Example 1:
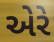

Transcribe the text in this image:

એરે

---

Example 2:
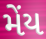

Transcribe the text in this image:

મેંય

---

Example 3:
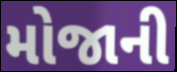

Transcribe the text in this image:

મોજાની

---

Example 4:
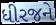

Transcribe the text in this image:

ધીરજને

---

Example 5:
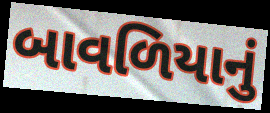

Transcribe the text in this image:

બાવળિયાનું